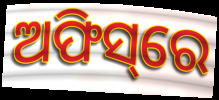
ଅଫିସ୍‌ରେ